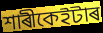
শাৰীকেইটাৰ